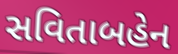
સવિતાબહેન